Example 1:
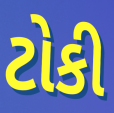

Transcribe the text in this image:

ટોકી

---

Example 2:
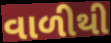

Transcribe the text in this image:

વાળીથી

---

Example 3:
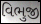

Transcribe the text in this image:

વિભુજી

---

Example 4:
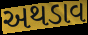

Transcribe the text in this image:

અથડાવ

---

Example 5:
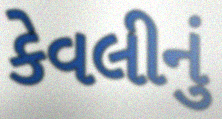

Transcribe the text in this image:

કેવલીનું